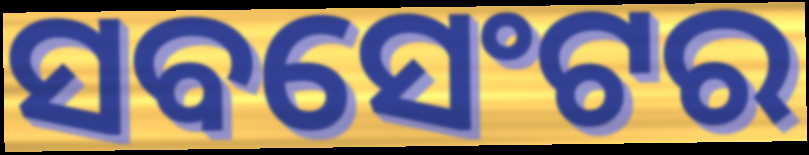
ସବସେଂଟର